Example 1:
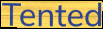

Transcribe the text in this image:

Tented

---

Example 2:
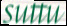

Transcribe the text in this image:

suttu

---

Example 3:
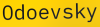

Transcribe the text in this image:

Odoevsky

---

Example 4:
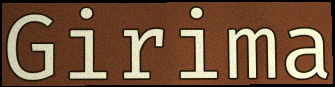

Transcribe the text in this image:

Girima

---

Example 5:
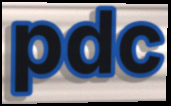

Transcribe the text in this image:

pdc